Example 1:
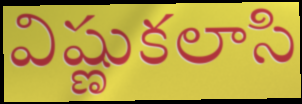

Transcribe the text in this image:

విష్ణుకలాసి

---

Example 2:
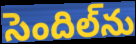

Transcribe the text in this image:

సెందిల్‌ను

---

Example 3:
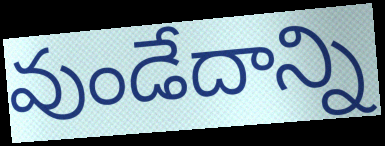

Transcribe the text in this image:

వుండేదాన్ని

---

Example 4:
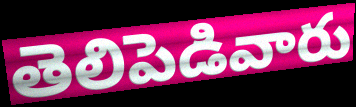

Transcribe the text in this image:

తెలిపెడివారు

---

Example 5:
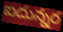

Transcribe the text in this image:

ఐదున్నర